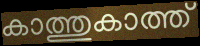
കാത്തുകാത്ത്